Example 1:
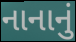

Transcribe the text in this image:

નાનાનું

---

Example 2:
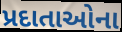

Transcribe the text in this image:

પ્રદાતાઓના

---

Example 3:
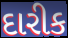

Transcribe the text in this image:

દારીક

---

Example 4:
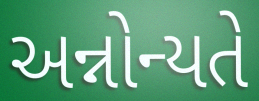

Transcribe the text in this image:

અન્નોન્યતે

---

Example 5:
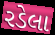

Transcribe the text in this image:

રડેલા